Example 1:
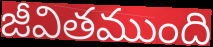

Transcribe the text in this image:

జీవితముంది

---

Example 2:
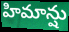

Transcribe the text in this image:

హిమాన్షు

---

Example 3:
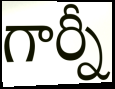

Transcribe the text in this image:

గార్నీ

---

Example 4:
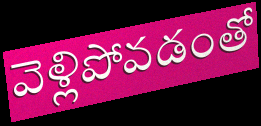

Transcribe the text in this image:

వెళ్లిపోవడంతో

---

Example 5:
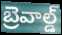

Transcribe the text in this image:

బ్రెవాల్డ్